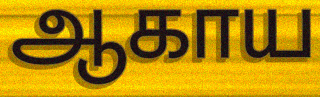
ஆகாய